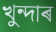
খুন্দাৰ